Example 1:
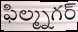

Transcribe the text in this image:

ఫిల్మ్నగర్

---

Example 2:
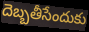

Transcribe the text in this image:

దెబ్బతీసేందుకు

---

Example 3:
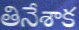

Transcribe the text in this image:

తినేశాక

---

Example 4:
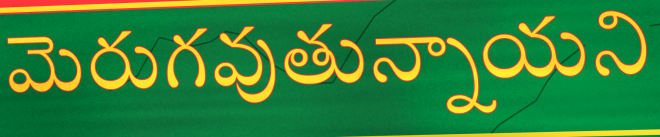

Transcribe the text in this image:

మెరుగవుతున్నాయని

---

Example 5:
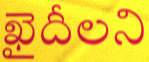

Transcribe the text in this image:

ఖైదీలని